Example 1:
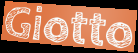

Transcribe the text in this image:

Giotto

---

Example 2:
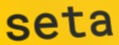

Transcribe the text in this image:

seta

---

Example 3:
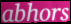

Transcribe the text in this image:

abhors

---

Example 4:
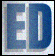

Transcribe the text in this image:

ED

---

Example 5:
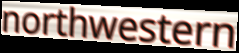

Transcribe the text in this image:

northwestern